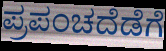
ಪ್ರಪಂಚದೆಡೆಗೆ